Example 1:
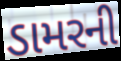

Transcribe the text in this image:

ડામરની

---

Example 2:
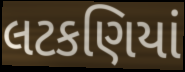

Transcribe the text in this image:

લટકણિયાં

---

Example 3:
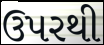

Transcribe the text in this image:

ઉપરથી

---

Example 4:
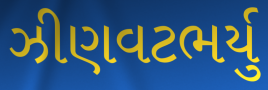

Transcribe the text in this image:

ઝીણવટભર્યુ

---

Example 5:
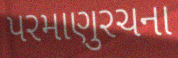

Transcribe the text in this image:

પરમાણુરચના